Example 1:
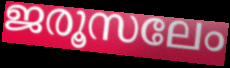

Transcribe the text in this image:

ജരൂസലേം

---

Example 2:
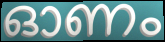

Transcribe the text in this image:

ഓണം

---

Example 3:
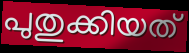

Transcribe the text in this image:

പുതുക്കിയത്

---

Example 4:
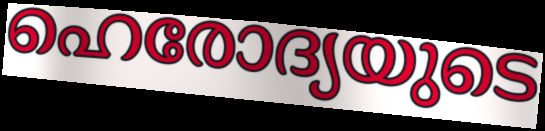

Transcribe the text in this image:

ഹെരോദ്യയുടെ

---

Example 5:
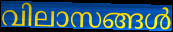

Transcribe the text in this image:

വിലാസങ്ങൾ